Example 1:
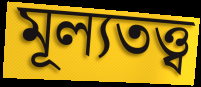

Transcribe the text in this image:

মূল্যতত্ত্ব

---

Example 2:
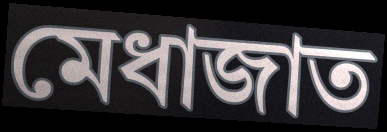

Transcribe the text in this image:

মেধাজাত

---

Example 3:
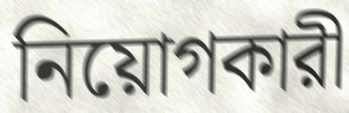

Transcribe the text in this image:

নিয়োগকারী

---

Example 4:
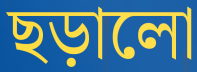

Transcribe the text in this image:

ছড়ালো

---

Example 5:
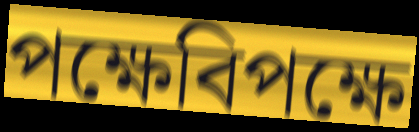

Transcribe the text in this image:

পক্ষেবিপক্ষে